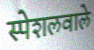
स्पेशलवाले